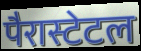
पैरास्टेटल